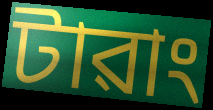
টাৱাং